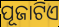
ପୂଜାଟିଏ